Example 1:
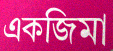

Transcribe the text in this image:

একজিমা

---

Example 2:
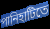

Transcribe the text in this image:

পানিহাটিতে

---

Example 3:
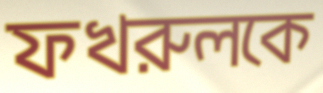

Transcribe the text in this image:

ফখরুলকে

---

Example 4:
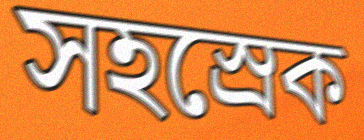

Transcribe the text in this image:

সহস্রেক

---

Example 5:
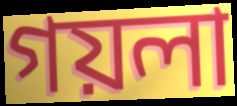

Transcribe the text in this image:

গয়লা